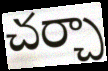
చర్చా